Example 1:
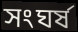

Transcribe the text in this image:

সংঘৰ্ষ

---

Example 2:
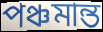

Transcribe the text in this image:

পঞ্চমান্ত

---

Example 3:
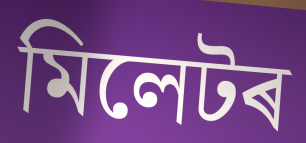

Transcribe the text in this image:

মিলেটৰ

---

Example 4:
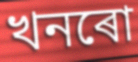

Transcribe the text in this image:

খনৰো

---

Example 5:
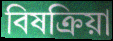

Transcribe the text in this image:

বিষক্ৰিয়া